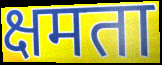
क्षमता